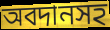
অবদানসহ